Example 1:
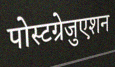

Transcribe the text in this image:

पोस्टग्रेजुएशन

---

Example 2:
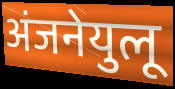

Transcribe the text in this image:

अंजनेयुलू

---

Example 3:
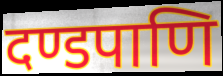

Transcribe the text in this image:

दण्डपाणि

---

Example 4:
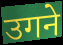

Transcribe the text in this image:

उगने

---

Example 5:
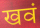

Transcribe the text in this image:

खवं